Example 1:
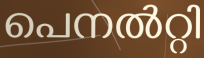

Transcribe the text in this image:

പെനൽറ്റി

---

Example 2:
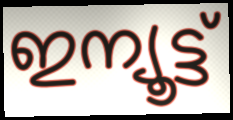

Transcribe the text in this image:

ഇന്യൂട്ട്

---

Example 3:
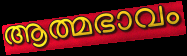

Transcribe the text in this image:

ആത്മഭാവം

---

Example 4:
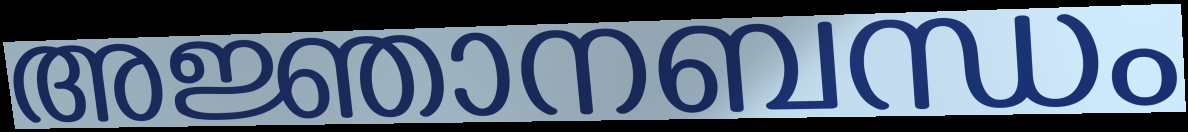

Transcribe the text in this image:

അജ്ഞാനബന്ധം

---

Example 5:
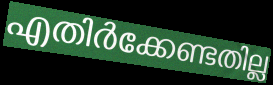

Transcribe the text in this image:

എതിർക്കേണ്ടതില്ല